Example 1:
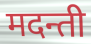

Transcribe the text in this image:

मदन्ती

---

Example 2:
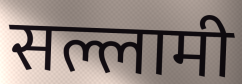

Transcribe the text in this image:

सल्लामी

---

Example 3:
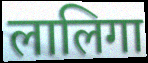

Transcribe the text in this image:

लालिगा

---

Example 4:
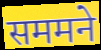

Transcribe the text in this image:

सममने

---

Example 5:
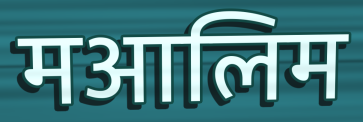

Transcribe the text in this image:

मआलिम